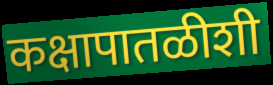
कक्षापातळीशी